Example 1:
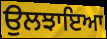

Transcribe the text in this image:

ਉਲਝਾਇਆ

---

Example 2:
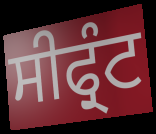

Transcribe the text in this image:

ਸੀਫ੍ਰੰਟ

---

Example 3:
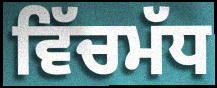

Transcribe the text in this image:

ਵਿੱਚਮੱਧ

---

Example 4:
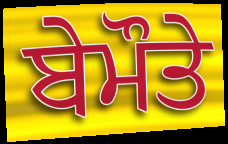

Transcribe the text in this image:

ਬੇਮੌਤੇ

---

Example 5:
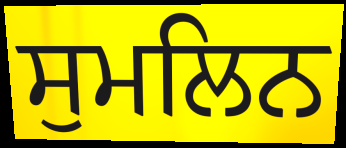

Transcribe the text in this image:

ਸੁਮਲਿਨ